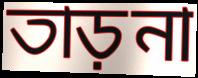
তাড়না